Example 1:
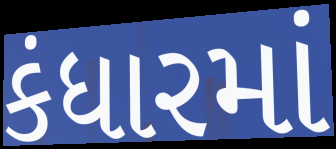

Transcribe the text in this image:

કંધારમાં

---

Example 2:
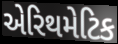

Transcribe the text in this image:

એરિથમેટિક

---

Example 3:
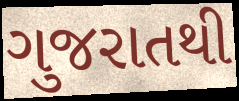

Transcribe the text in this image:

ગુજરાતથી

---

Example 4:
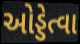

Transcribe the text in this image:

ઓડ્ડેત્વા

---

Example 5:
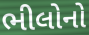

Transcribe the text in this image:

ભીલોનો